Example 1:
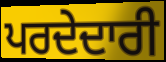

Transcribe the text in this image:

ਪਰਦੇਦਾਰੀ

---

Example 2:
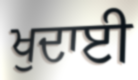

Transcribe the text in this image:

ਖੁਦਾਈ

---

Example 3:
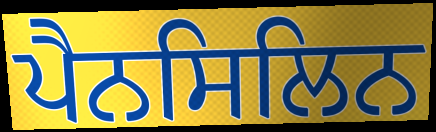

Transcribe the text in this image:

ਪੈਨਸਿਲਿਨ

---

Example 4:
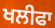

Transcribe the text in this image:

ਖਲੀਫਾ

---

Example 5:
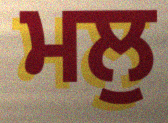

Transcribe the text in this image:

ਮਲੁ